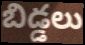
బిడ్డలు